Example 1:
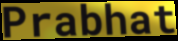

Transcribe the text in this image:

Prabhat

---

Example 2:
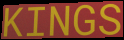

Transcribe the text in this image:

KINGS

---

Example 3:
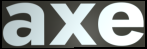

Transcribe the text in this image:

axe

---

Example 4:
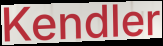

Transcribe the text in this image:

Kendler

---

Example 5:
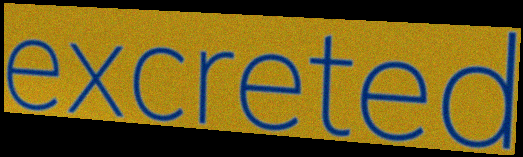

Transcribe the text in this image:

excreted